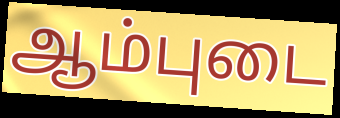
ஆம்புடை